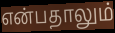
என்பதாலும்